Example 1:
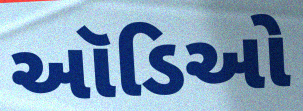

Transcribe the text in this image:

ઑડિઓ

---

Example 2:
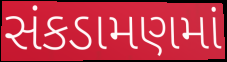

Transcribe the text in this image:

સંકડામણમાં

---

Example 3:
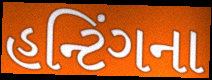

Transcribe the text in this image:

હન્ટિંગના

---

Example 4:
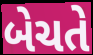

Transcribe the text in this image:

બેચતે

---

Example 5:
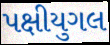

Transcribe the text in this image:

પક્ષીયુગલ